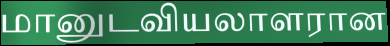
மானுடவியலாளரான